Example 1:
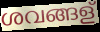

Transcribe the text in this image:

ശവങ്ങള്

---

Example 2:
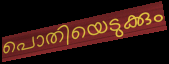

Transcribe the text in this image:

പൊതിയെടുക്കും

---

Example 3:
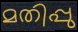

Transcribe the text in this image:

മതിപ്പു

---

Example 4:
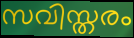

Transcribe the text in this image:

സവിസ്തരം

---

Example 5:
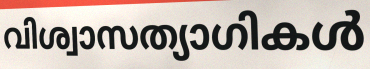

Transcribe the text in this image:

വിശ്വാസത്യാഗികൾ